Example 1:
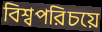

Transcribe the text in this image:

বিশ্বপরিচয়ে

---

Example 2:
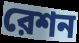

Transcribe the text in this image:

রেশন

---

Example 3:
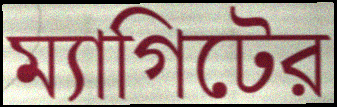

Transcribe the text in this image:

ম্যাগিটের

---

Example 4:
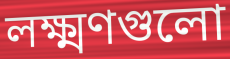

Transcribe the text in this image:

লক্ষ্মণগুলো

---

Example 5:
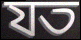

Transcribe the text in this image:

যত